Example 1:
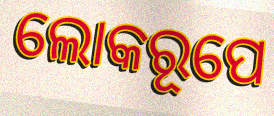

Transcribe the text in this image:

ଲୋକରୂପେ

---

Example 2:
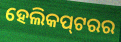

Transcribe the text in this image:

ହେଲିକପ୍‌ଟରର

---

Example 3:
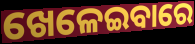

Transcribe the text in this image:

ଖେଳେଇବାରେ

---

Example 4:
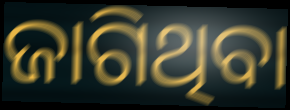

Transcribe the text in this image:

ଜାଗିଥିବା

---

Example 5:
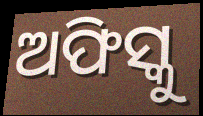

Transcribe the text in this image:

ଅଫିସ୍କୁ